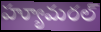
హ్యూమరల్